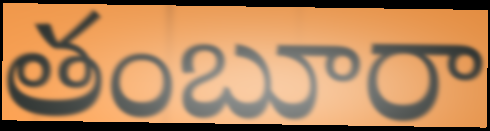
తంబూరా